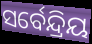
ସର୍ବେନ୍ଦ୍ରିୟ